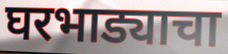
घरभाड्याचा